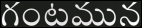
గంటమున